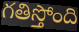
గతిస్తోంది